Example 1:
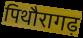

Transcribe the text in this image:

पिथौरागढ़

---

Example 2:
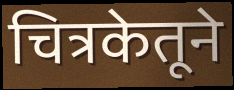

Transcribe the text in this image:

चित्रकेतूने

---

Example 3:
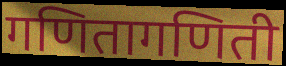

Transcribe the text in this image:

गणितागणिती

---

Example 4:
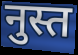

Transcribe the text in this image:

नुस्त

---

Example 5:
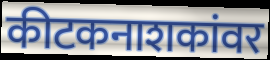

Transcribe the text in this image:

कीटकनाशकांवर